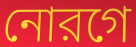
নোরগে